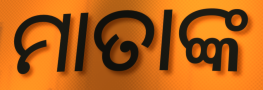
ମାତାଙ୍କ